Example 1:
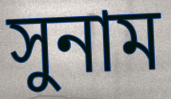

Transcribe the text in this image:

সুনাম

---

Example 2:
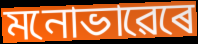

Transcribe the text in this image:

মনোভাৱেৰে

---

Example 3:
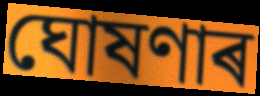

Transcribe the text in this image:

ঘোষণাৰ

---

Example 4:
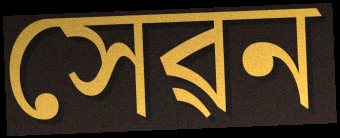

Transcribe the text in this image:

সেৱন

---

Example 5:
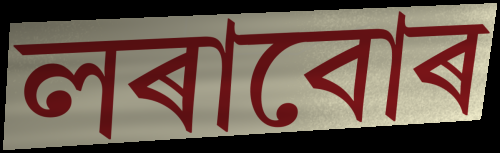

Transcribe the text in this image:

লৰাবোৰ